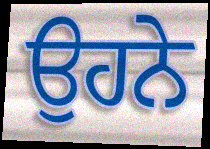
ਉਹਨੇ